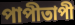
পাপীতাপী